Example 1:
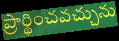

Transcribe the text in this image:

ప్రార్థించవచ్చును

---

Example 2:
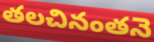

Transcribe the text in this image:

తలచినంతనె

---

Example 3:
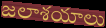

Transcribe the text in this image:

జలాశయాలు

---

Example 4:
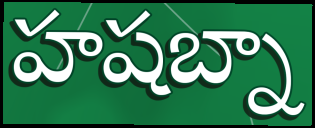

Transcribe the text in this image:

హషబ్నా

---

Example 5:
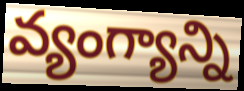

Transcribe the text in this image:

వ్యంగ్యాన్ని